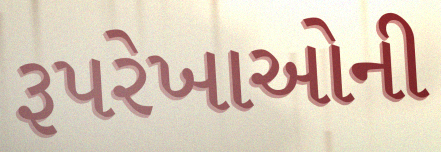
રૂપરેખાઓની